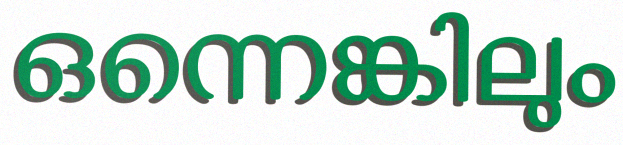
ഒന്നെങ്കിലും